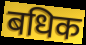
बधिक